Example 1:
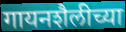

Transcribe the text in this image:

गायनशैलीच्या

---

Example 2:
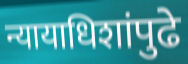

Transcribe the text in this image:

न्यायाधिशांपुढे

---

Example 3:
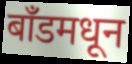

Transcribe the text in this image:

बाँडमधून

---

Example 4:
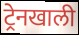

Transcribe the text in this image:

ट्रेनखाली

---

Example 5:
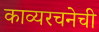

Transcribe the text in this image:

काव्यरचनेची